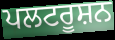
ਪਲਟਰੂਸ਼ਨ